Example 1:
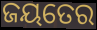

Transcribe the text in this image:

ଜୟତେର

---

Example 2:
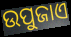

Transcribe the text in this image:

ଉପୁଜାଏ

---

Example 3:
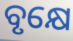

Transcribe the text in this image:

ବୃକ୍ଷେ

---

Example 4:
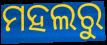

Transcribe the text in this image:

ମହଲରୁ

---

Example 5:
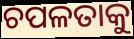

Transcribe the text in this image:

ଚପଳତାକୁ